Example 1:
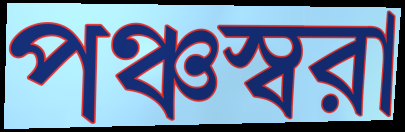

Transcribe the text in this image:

পঞ্চস্বরা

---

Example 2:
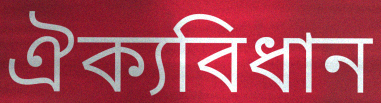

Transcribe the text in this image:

ঐক্যবিধান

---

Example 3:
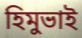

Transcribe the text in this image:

হিমুভাই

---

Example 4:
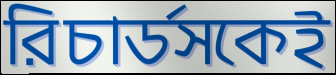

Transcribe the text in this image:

রিচার্ডসকেই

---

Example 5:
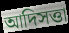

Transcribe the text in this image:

আদিসত্তা